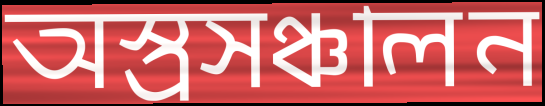
অস্ত্রসঞ্চালন